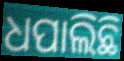
ଧପାଲିଛି